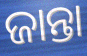
ଜାନ୍ତା